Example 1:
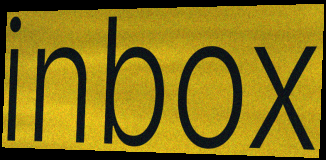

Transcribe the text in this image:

inbox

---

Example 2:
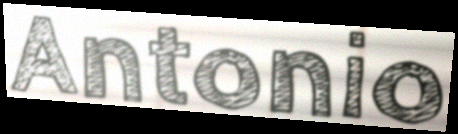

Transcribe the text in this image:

Antonio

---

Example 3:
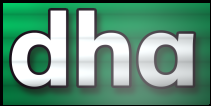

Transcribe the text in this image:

dha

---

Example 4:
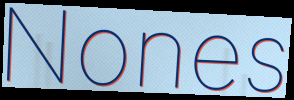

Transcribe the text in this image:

Nones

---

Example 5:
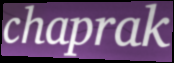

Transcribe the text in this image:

chaprak